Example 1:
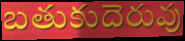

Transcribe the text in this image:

బతుకుదెరువు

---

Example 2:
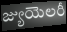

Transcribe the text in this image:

జ్యుయెలరీ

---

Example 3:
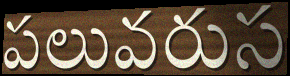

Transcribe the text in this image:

పలువరుస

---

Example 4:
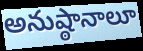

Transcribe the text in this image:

అనుష్ఠానాలూ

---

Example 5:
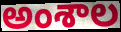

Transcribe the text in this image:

అంశాల